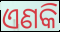
ଏଣକି